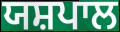
ਯਸ਼ਪਾਲ